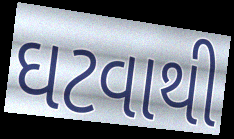
ઘટવાથી